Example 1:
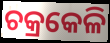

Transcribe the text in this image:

ଚକ୍ରକେଳି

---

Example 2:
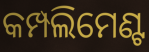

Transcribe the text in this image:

କମ୍ପଲିମେଣ୍ଟ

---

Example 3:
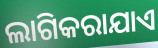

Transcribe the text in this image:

ଲାଗିକରାଯାଏ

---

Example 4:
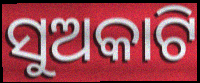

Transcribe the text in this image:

ସୁଅକାଟି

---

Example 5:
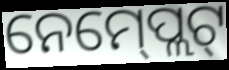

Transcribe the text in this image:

ନେମ୍‍ପ୍ଲେଟ୍